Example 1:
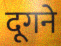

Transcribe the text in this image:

दूगने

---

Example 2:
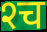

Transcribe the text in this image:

श्च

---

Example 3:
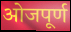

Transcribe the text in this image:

ओजपूर्ण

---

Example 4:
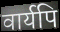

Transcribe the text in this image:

वार्यपि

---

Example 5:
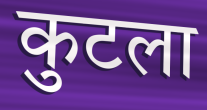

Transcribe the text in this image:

कुटला